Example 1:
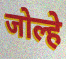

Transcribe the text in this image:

जोल्हे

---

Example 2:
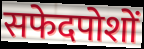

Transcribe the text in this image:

सफेदपोशों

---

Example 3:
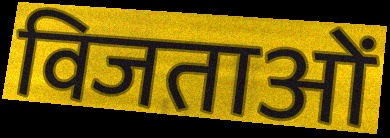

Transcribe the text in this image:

विजताओं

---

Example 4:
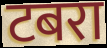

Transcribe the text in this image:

टबरा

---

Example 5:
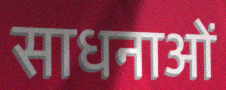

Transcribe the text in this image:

साधनाओं